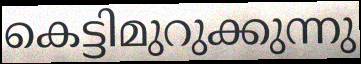
കെട്ടിമുറുക്കുന്നു